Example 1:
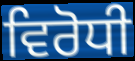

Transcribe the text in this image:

ਵਿਰੋਧੀ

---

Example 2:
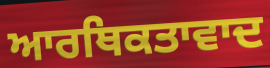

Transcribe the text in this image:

ਆਰਥਿਕਤਾਵਾਦ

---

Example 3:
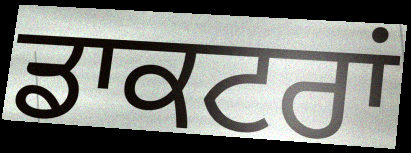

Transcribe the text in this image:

ਡਾਕਟਰਾਂ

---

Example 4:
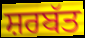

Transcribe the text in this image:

ਸ਼ਰਬੱਤ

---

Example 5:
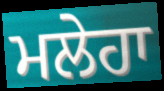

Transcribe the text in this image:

ਮਲੇਹਾ